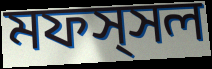
মফস্‌সল